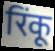
रिंकू